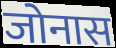
जोनास